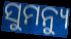
ସୁମନ୍ୟୁ